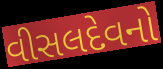
વીસલદેવનો